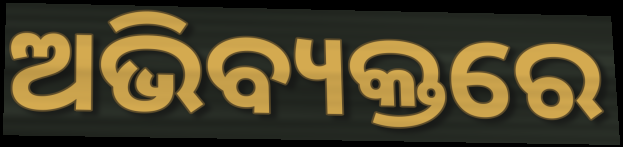
ଅଭିବ୍ୟକ୍ତରେ